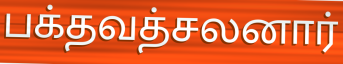
பக்தவத்சலனார்